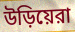
উড়িয়েরা